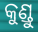
କୁଣ୍ଡୁ